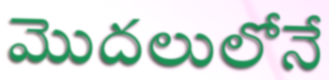
మొదలులోనే